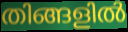
തിങ്ങളിൽ